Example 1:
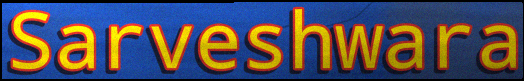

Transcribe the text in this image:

Sarveshwara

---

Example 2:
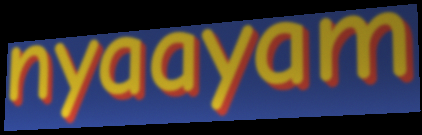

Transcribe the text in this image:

nyaayam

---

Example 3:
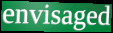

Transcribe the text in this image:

envisaged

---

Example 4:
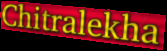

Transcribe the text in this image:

Chitralekha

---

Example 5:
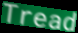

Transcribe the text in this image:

Tread